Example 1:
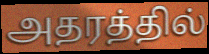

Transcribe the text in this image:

அதரத்தில்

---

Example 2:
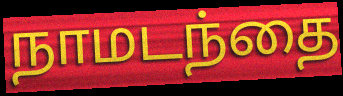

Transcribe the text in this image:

நாமடந்தை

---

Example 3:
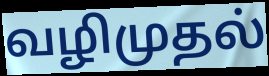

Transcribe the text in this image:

வழிமுதல்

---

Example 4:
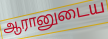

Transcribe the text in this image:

ஆரானுடைய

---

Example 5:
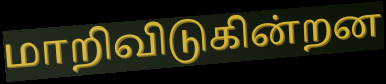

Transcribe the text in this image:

மாறிவிடுகின்றன